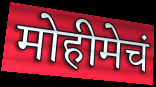
मोहीमेचं